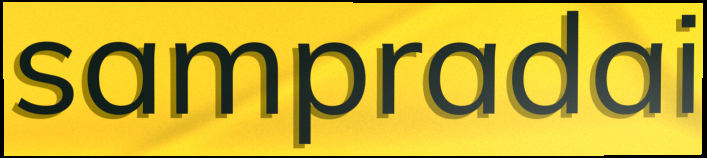
sampradai